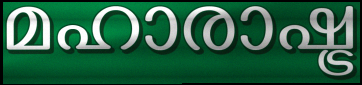
മഹാരാഷ്ട്ര